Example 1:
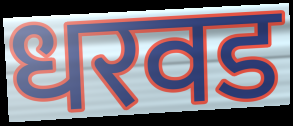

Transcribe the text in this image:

धरवड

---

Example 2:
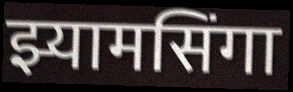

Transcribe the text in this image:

झ्यामसिंगा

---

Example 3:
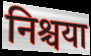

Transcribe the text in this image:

निश्चया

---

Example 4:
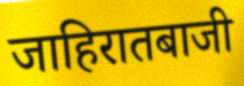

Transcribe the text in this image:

जाहिरातबाजी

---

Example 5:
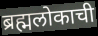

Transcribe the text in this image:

ब्रह्मलोकाची